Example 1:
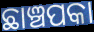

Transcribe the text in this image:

ଛାଞ୍ଚପକା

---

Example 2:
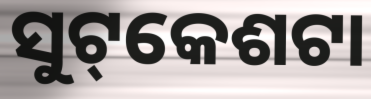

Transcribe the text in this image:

ସୁଟ୍‌କେଶଟା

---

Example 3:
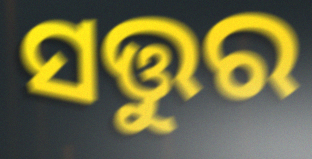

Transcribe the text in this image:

ସତ୍ତୁର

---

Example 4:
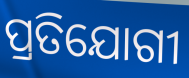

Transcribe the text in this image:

ପ୍ରତିଯୋଗୀ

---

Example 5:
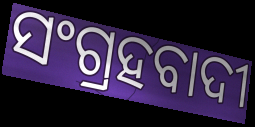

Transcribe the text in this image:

ସଂଗ୍ରହବାଦୀ